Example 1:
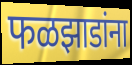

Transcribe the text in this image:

फळझाडांना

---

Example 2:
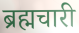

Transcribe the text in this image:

ब्रह्मचारी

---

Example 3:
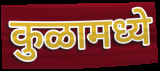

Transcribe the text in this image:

कुळामध्ये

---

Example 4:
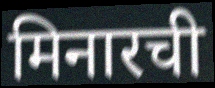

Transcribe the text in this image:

मिनारची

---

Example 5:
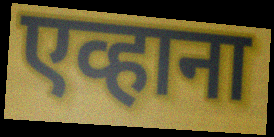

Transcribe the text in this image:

एव्हाना